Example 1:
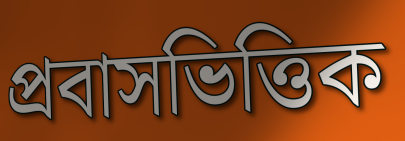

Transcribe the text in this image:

প্রবাসভিত্তিক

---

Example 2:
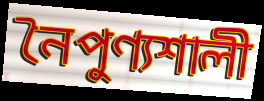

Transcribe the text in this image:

নৈপুণ্যশালী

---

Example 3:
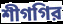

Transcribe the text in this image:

শীগগির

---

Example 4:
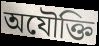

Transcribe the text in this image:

অযৌক্তি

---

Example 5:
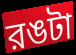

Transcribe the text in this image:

রঙটা